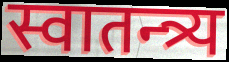
स्वातन्त्र्य